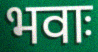
भवाः